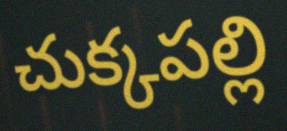
చుక్కపల్లి